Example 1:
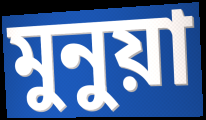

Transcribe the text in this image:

মুনুয়া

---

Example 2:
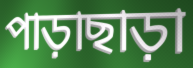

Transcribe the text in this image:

পাড়াছাড়া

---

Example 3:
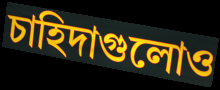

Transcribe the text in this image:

চাহিদাগুলোও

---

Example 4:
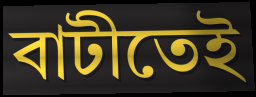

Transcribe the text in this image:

বাটীতেই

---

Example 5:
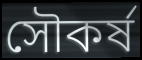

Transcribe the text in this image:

সৌকর্ষ